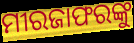
ମୀରଜାଫରଙ୍କୁ